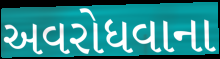
અવરોધવાના